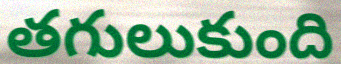
తగులుకుంది